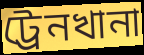
ট্রেনখানা